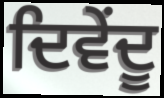
ਦਿਵੇਂਦੂ